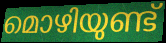
മൊഴിയുണ്ട്